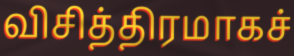
விசித்திரமாகச்